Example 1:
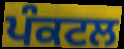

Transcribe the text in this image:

ਪੰਕਟਲ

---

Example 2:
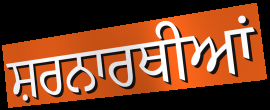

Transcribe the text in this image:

ਸ਼ਰਨਾਰਥੀਆਂ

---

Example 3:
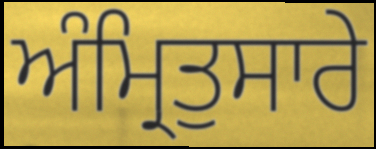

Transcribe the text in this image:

ਅੰਮ੍ਰਿਤੁਸਾਰੇ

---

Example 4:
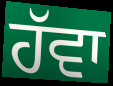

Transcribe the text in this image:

ਹੱਵਾ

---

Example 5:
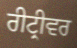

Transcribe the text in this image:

ਰੀਟ੍ਰੀਵਰ